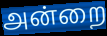
அன்றை